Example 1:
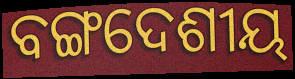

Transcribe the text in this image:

ବଙ୍ଗଦେଶୀୟ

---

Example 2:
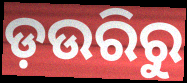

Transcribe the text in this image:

ଡ଼ଉରିରୁ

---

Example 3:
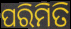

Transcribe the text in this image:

ପରିମିତି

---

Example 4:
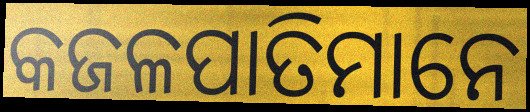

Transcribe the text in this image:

କଜଳପାତିମାନେ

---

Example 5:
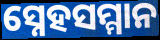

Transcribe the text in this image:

ସ୍ନେହସମ୍ମାନ